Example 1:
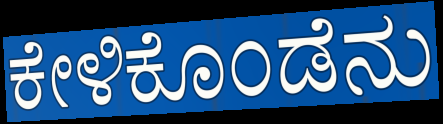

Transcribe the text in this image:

ಕೇಳಿಕೊಂಡೆನು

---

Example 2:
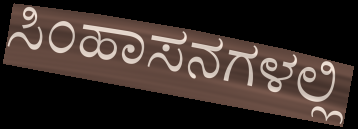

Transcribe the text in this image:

ಸಿಂಹಾಸನಗಳಲ್ಲಿ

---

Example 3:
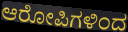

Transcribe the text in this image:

ಆರೋಪಿಗಳಿಂದ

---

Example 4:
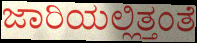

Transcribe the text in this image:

ಜಾರಿಯಲ್ಲಿತ್ತಂತೆ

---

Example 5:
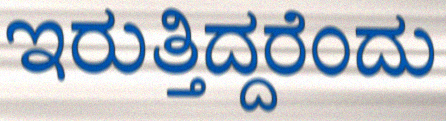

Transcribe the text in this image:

ಇರುತ್ತಿದ್ದರೆಂದು